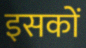
इसकों